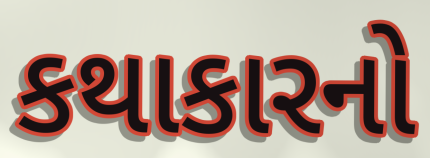
કથાકારનો